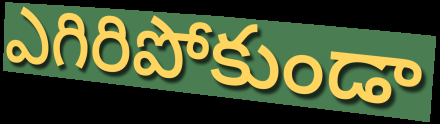
ఎగిరిపోకుండా